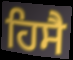
ਹਿਸੈ